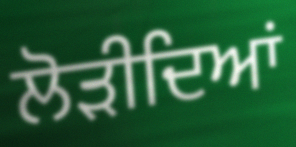
ਲੋੜੀਦਿਆਂ